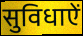
सुविधाऐं